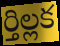
ర్తిల్లక